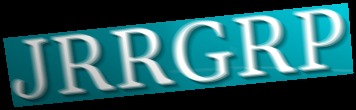
JRRGRP